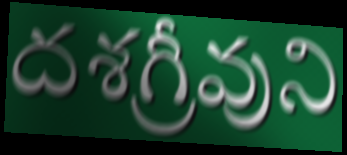
దశగ్రీవుని